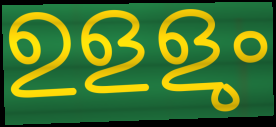
ഉളളും